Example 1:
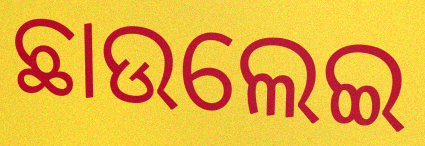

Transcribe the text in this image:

ଛାଉଲେଇ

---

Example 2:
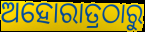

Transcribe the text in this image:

ଅହୋରାତ୍ରଠାରୁ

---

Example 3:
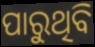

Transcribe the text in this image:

ପାରୁଥିବି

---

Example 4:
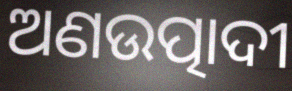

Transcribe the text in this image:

ଅଣଉତ୍ପାଦୀ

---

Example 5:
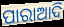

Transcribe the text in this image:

ପାରାଆଦି